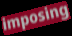
imposing